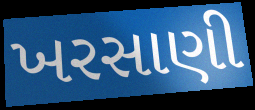
ખરસાણી